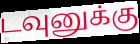
டவுனுக்கு